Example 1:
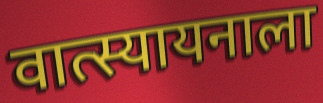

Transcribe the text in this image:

वात्स्यायनाला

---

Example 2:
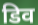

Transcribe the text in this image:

डिव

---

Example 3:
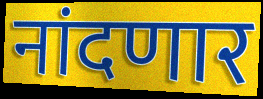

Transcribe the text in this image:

नांदणार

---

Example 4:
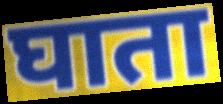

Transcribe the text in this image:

घाता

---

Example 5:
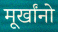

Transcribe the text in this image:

मूर्खांनो